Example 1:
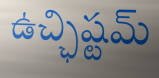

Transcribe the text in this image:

ఉచ్ఛిష్టమ్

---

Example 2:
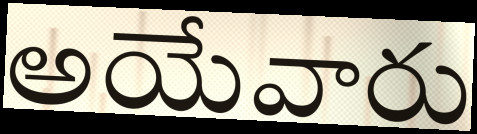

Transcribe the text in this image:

అయేవారు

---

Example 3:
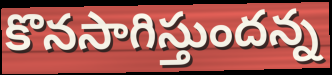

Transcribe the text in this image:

కొనసాగిస్తుందన్న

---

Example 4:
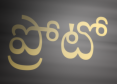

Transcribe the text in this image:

ప్రోటో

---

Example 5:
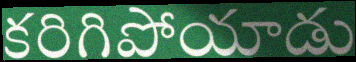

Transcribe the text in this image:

కరిగిపోయాడు